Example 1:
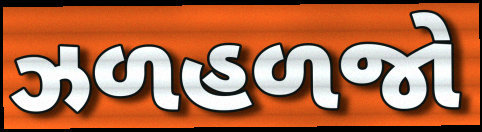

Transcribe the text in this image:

ઝળહળજો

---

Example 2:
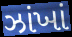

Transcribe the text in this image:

ઝાંખાં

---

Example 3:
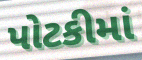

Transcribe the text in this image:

પોટકીમાં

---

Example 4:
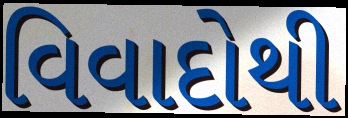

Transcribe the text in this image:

વિવાદોથી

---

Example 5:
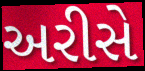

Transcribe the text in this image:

અરીસે